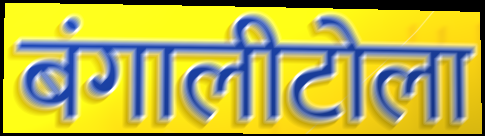
बंगालीटोला